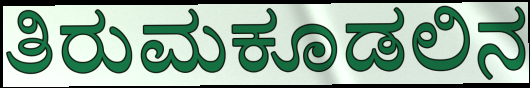
ತಿರುಮಕೂಡಲಿನ